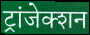
ट्रांजेक्शन